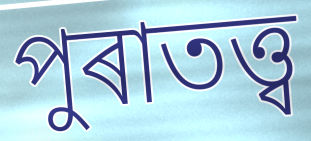
পুৰাতত্ত্ব